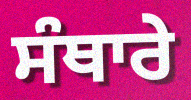
ਸੰਥਾਰੇ